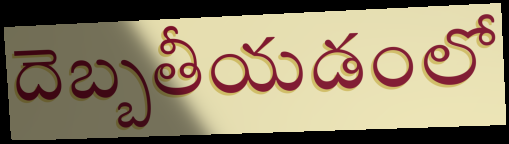
దెబ్బతీయడంలో